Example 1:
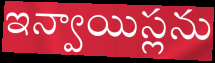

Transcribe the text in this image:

ఇన్వాయిస్లను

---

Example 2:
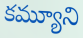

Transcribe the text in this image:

కమ్యూని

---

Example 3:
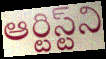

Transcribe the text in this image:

ఆర్టిస్ట్‌ని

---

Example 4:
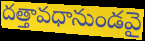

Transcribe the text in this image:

దత్తావధానుండవై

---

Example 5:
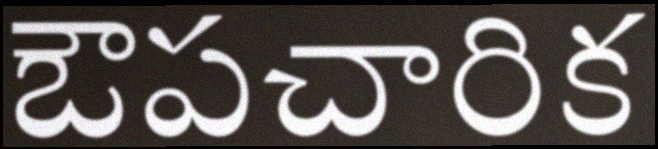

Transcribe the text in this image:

ఔపచారిక